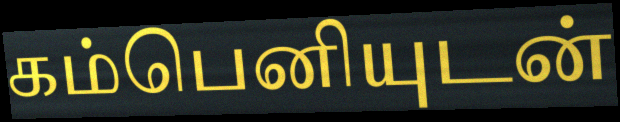
கம்பெனியுடன்